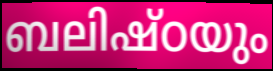
ബലിഷ്ഠയും